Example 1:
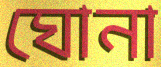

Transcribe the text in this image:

ঘোনা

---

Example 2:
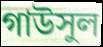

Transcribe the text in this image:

গাউসুল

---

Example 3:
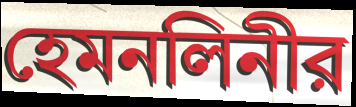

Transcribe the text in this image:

হেমনলিনীর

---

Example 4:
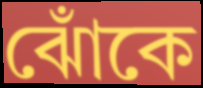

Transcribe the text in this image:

ঝোঁকে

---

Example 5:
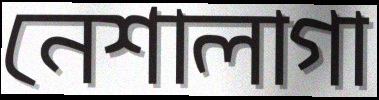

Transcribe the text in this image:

নেশালাগা